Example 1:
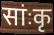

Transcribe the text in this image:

सांःकृ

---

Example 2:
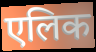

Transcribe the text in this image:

एलिक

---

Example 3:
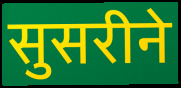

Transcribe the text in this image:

सुसरीने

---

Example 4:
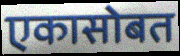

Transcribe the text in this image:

एकासोबत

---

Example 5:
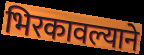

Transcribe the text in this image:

भिरकावल्याने